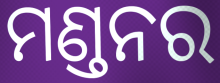
ମଣ୍ଡନର